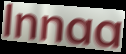
Innaa